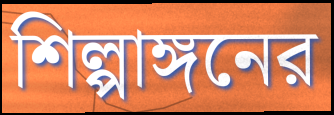
শিল্পাঙ্গনের